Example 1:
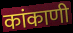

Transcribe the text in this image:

कांकाणी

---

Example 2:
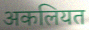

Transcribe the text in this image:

अकलियत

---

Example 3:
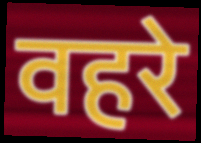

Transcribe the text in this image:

वहरे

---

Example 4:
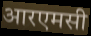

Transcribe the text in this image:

आरएमसी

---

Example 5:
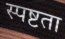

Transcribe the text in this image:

स्पष्टता